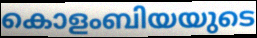
കൊളംബിയയുടെ